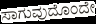
ಸಾಗುವುದೊಂದೇ